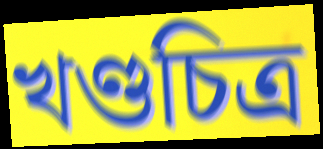
খণ্ডচিত্র